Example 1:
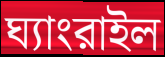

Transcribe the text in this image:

ঘ্যাংরাইল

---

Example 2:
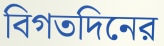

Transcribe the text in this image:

বিগতদিনের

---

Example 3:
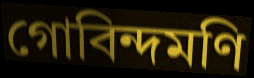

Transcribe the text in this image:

গোবিন্দমণি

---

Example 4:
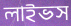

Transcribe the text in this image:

লাইভস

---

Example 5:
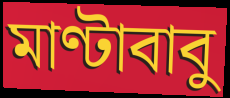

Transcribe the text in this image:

মাণ্টাবাবু